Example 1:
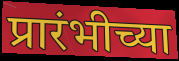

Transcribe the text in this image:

प्रारंभीच्या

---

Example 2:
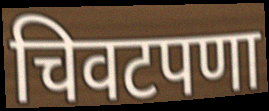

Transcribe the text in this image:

चिवटपणा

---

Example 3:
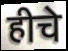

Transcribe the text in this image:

हीचे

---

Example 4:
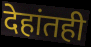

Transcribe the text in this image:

देहांतही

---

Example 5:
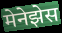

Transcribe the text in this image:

मेनेझेस